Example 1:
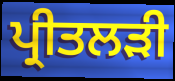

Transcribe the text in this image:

ਪ੍ਰੀਤਲੜੀ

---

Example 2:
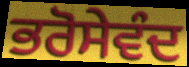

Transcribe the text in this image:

ਭਰੋਸੇਵੰਦ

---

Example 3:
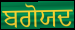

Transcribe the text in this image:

ਬਗੋਯਦ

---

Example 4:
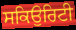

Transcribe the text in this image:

ਸਕਿਉਰਿਟੀ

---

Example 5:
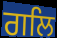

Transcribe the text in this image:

ਗਲਿ